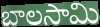
బాలసామి